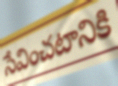
సేవించటానికి